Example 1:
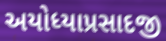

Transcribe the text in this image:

અયોધ્યાપ્રસાદજી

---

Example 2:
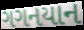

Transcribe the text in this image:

ગગનયાન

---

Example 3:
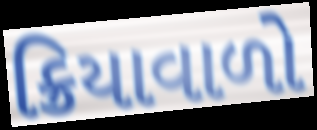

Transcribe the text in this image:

ક્રિયાવાળો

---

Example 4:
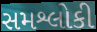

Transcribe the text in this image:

સમશ્લોકી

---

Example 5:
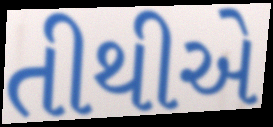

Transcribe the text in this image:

તીથીએ